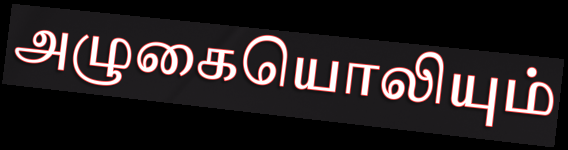
அழுகையொலியும்